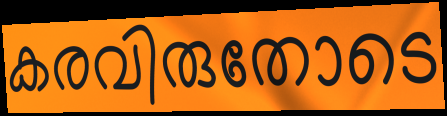
കരവിരുതോടെ